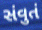
સંવુતં